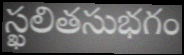
స్ఖలితసుభగం